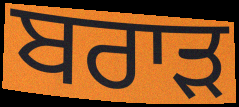
ਬਰਾੜ